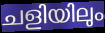
ചളിയിലും